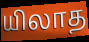
யிலாத